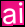
ai